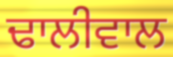
ਢਾਲੀਵਾਲ